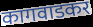
कागवाडकर